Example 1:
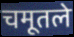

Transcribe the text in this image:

चमूतले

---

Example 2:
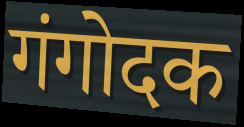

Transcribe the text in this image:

गंगोदक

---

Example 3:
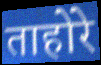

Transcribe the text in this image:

ताहोरे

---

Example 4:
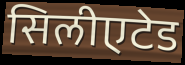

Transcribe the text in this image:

सिलीएटेड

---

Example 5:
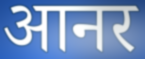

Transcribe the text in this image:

आनर